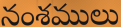
నంశములు